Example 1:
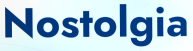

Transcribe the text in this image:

Nostolgia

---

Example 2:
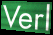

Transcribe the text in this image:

Verl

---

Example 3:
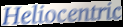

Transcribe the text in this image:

Heliocentric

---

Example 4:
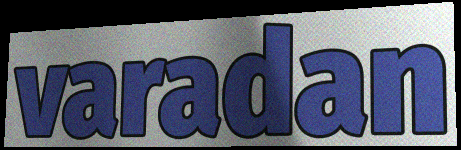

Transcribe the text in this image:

varadan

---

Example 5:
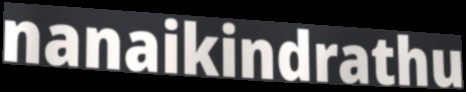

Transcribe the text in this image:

nanaikindrathu